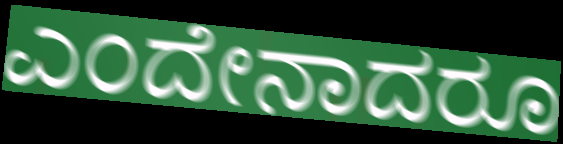
ಎಂದೇನಾದರೂ